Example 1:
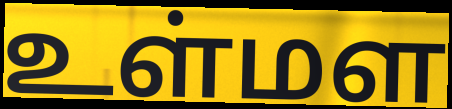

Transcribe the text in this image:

உள்மள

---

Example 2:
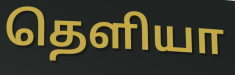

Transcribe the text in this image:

தெளியா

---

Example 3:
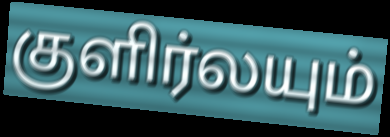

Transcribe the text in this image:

குளிர்லயும்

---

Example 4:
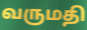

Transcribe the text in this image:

வருமதி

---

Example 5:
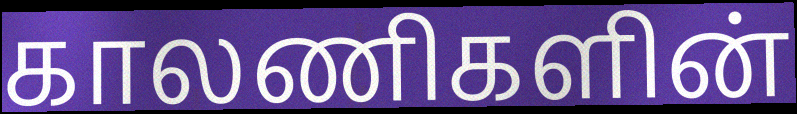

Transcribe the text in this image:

காலணிகளின்